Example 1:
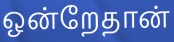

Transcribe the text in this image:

ஒன்றேதான்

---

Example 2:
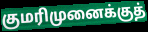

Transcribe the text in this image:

குமரிமுனைக்குத்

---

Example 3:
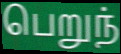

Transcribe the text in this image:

பெறுந்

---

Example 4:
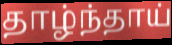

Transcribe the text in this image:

தாழ்ந்தாய்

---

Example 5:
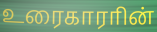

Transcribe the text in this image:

உரைகாரரின்